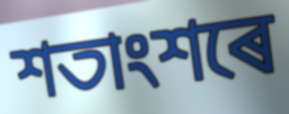
শতাংশৰে